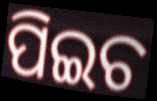
ପିଇଚ